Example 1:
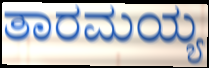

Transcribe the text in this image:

ತಾರಮಯ್ಯ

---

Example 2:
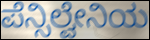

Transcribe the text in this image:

ಪೆನ್ಸಿಲ್ವೇನಿಯ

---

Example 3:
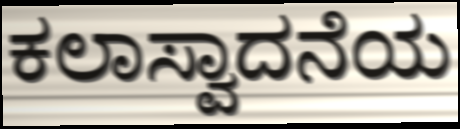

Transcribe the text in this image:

ಕಲಾಸ್ವಾದನೆಯ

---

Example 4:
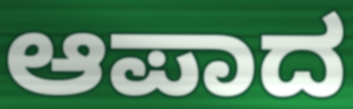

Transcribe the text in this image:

ಆಪಾದ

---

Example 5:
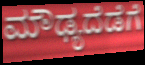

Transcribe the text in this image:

ಮೌಢ್ಯದೆಡೆಗೆ